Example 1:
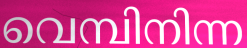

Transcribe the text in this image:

വെമ്പിനിന്ന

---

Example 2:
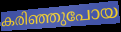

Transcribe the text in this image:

കരിഞ്ഞുപോയ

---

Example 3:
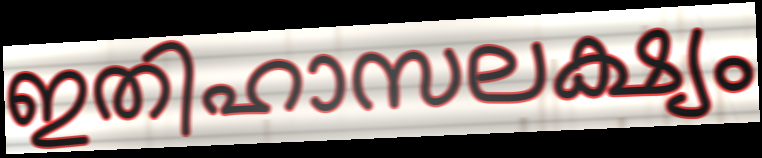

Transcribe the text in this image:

ഇതിഹാസലക്ഷ്യം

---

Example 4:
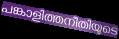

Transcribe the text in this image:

പങ്കാളിത്തനീതിയുടെ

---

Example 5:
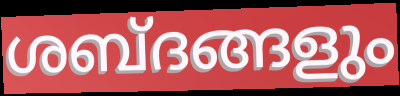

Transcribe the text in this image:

ശബ്ദങ്ങളും